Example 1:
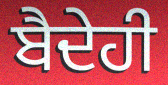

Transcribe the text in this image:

ਬੈਦੇਹੀ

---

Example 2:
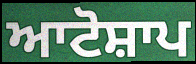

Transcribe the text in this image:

ਆਟੋਸ਼ਾਪ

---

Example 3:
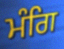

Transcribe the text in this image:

ਮੰਗਿ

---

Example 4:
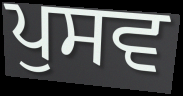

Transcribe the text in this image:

ਪੁਸਵ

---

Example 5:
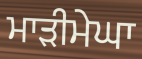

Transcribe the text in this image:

ਮਾੜੀਮੇਘਾ